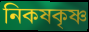
নিকষকৃষ্ণ